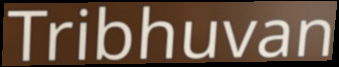
Tribhuvan